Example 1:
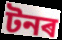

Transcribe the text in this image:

টনৰ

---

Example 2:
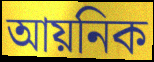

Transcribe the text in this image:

আয়নিক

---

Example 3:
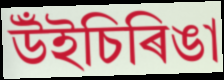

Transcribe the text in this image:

উঁইচিৰিঙা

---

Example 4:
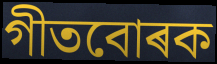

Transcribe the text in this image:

গীতবোৰক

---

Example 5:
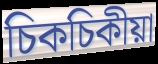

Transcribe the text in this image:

চিকচিকীয়া